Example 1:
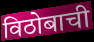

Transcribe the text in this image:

विठोबाची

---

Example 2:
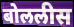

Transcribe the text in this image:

बोललीस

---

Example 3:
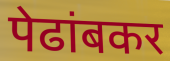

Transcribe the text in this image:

पेढांबकर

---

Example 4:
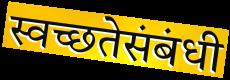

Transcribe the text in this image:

स्वच्छतेसंबंधी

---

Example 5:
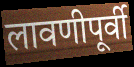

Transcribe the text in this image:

लावणीपूर्वी